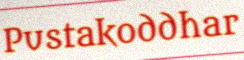
Pustakoddhar